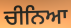
ਚੀਨਿਆ